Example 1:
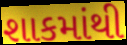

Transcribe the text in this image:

શાકમાંથી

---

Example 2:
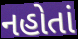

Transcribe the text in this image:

નહોતાં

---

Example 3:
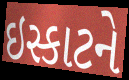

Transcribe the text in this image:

ઇસ્કાટને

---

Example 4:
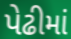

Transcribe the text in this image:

પેઢીમાં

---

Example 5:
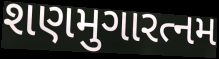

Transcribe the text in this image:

શણમુગારત્નમ